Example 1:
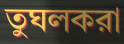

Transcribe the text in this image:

তুঘলকরা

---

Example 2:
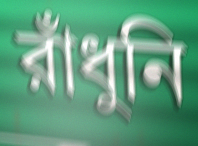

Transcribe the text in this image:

রাঁধুনি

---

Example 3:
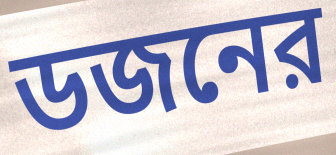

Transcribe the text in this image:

ডজনের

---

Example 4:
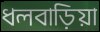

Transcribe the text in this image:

ধলবাড়িয়া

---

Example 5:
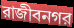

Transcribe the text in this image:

রাজীবনগর